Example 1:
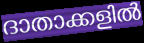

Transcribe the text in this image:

ദാതാക്കളിൽ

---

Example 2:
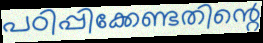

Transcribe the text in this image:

പഠിപ്പിക്കേണ്ടതിന്റെ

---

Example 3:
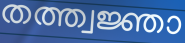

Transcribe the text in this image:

തത്ത്വജ്ഞാ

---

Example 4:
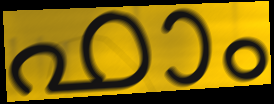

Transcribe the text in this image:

ഫാം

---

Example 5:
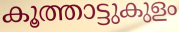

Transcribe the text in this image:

കൂത്താട്ടുകുളം